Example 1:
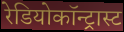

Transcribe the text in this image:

रेडियोकॉन्ट्रास्ट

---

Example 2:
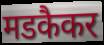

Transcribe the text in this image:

मडकैकर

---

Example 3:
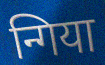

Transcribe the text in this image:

न्गिया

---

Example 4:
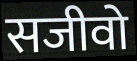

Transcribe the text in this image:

सजीवो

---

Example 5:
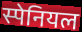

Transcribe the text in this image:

स्पेनियल